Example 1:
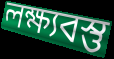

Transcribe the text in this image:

লক্ষ্যবস্তু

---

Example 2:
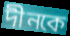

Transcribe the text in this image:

দীনকে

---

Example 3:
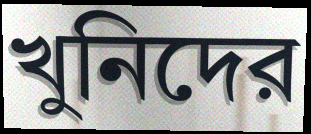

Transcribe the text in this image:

খুনিদের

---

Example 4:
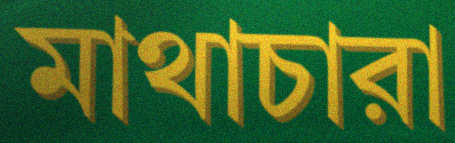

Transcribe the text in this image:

মাথাচারা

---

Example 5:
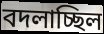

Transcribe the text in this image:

বদলাচ্ছিল